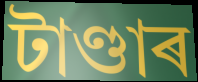
টাণ্ডাৰ